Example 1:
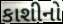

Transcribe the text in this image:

કાશીનો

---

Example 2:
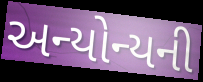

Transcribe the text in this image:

અન્યોન્યની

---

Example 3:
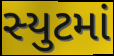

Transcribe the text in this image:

સ્યુટમાં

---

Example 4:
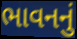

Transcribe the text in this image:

ભાવનનું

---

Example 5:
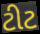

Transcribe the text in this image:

ટીટ